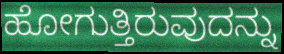
ಹೋಗುತ್ತಿರುವುದನ್ನು